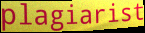
plagiarist